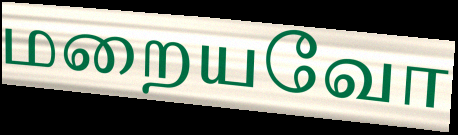
மறையவோ